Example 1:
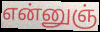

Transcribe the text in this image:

என்னுஞ்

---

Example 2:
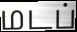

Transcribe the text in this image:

மடப்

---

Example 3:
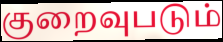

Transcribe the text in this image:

குறைவுபடும்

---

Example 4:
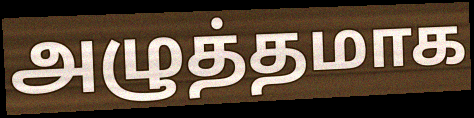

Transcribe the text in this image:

அழுத்தமாக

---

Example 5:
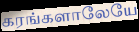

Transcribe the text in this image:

கரங்களாலேயே